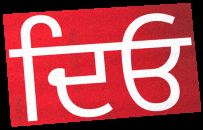
ਦਿਓ